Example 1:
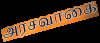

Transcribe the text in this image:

அரசவாகை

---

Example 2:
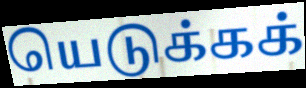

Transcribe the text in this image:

யெடுக்கக்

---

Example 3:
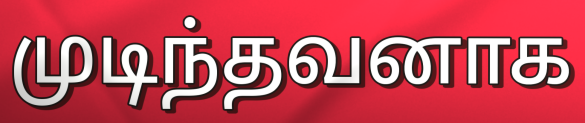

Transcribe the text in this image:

முடிந்தவனாக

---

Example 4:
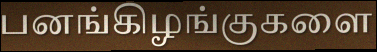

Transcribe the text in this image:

பனங்கிழங்குகளை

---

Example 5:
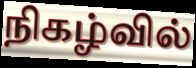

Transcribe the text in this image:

நிகழ்வில்